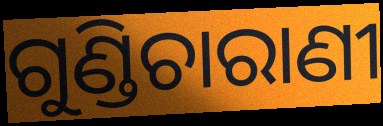
ଗୁଣ୍ଡିଚାରାଣୀ